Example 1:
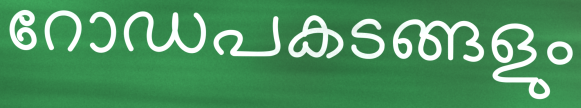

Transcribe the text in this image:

റോഡപകടങ്ങളും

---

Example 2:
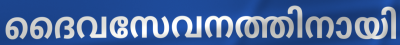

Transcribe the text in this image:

ദൈവസേവനത്തിനായി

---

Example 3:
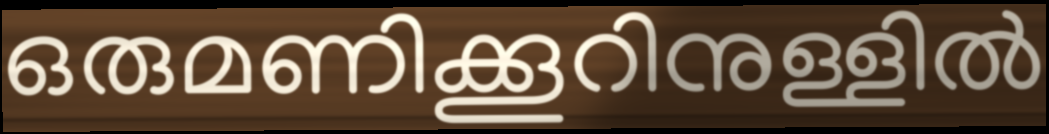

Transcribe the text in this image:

ഒരുമണിക്കൂറിനുള്ളിൽ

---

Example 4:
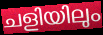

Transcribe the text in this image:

ചളിയിലും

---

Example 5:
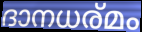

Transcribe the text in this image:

ദാനധര്മം